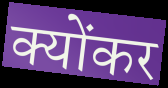
क्योंकर